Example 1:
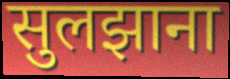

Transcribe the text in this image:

सुलझाना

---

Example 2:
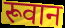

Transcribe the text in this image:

रूवान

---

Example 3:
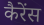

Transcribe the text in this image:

कैरेंस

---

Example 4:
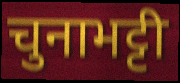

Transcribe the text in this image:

चुनाभट्टी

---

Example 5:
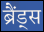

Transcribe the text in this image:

ब्रैंड्स